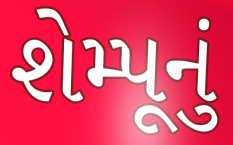
શેમ્પૂનું